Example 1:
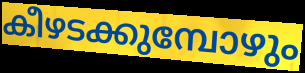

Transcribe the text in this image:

കീഴടക്കുമ്പോഴും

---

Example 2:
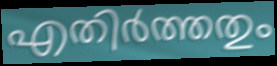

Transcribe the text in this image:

എതിർത്തതും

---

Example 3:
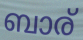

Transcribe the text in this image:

ബാര്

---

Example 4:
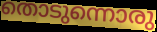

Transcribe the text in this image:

തൊടുന്നൊരു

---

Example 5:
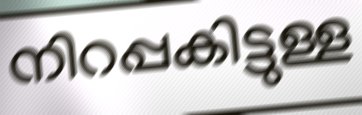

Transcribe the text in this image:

നിറപ്പകിട്ടുള്ള